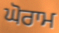
ਘੋਰਾਮ